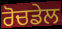
ਰੋਚਡੇਲ